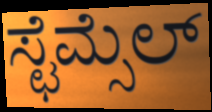
ಸ್ಟೆಮ್ಸೆಲ್